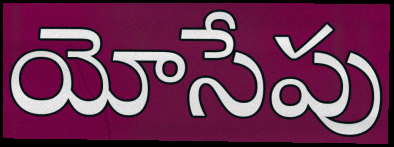
యోసేపు